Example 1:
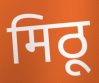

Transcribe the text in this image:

मिठू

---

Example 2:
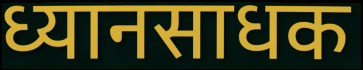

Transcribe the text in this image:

ध्यानसाधक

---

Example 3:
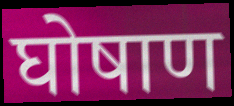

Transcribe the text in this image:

घोषाण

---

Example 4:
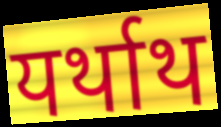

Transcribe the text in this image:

यर्थाथ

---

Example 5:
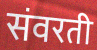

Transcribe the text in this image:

संवरती